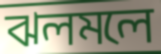
ঝলমলে